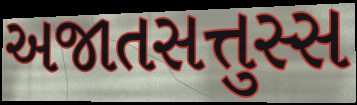
અજાતસત્તુસ્સ